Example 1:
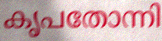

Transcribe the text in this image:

കൃപതോന്നി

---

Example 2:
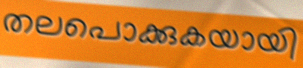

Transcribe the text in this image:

തലപൊക്കുകയായി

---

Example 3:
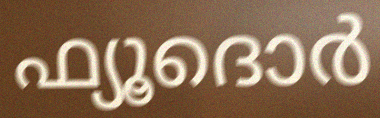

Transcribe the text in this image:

ഫ്യൂദൊർ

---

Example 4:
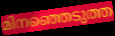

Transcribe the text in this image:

മിനഞ്ഞെടുത്ത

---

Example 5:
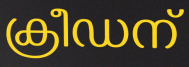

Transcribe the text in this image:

ക്രീഡന്